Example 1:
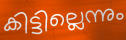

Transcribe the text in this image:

കിട്ടില്ലെന്നും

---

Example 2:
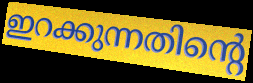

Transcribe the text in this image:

ഇറക്കുന്നതിന്റെ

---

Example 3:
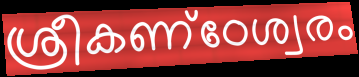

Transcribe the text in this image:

ശ്രീകണ്‌ഠേശ്വരം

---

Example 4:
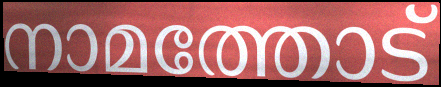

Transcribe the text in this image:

നാമത്തോട്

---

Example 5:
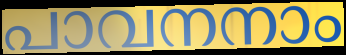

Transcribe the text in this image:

പാവനനാം